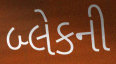
બ્લેકની